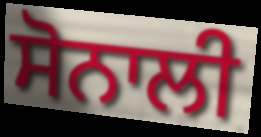
ਸੋਨਾਲੀ